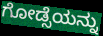
ಗೋಡ್ಸೆಯನ್ನು